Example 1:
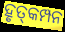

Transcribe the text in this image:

ହୃତ୍‌କମ୍ପନ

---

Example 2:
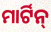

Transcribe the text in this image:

ମାର୍ଟିନ୍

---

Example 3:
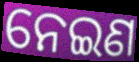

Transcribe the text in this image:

ନେଇଣ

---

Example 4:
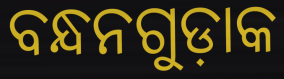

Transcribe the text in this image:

ବନ୍ଧନଗୁଡ଼ାକ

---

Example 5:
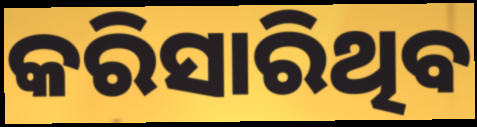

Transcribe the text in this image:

କରିସାରିଥିବ